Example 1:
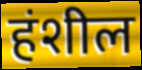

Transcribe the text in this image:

हंशील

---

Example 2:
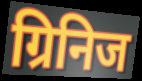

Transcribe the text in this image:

ग्रिनिज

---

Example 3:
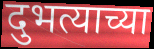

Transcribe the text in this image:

दुभत्याच्या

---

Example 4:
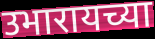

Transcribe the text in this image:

उभारायच्या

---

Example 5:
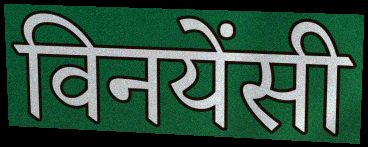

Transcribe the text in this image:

विनयेंसी